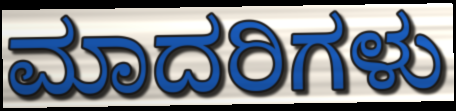
ಮಾದರಿಗಳು